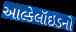
આલ્કેલૉઇડનો